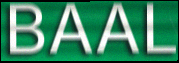
BAAL